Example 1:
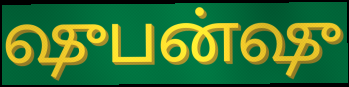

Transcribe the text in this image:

ஷுபன்ஷு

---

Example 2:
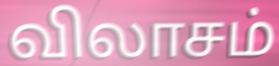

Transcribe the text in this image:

விலாசம்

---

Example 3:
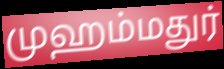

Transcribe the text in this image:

முஹம்மதுர்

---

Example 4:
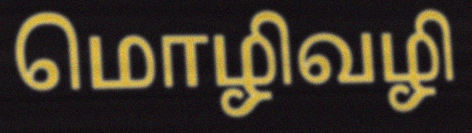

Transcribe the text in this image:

மொழிவழி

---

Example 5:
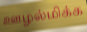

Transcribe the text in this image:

ஊழல்மிக்க